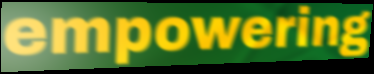
empowering